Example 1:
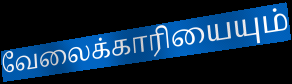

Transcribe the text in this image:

வேலைக்காரியையும்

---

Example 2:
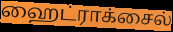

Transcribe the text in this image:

ஹைட்ராக்சைல்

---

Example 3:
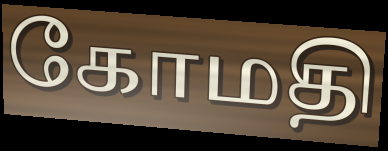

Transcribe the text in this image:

கோமதி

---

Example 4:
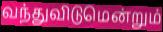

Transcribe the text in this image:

வந்துவிடுமென்றும்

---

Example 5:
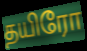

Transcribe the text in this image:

தயிரோ